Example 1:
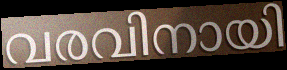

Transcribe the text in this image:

വരവിനായി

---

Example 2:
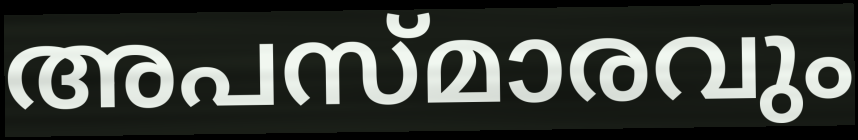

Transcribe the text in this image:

അപസ്മാരവും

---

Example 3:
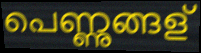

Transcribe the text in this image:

പെണ്ണുങ്ങള്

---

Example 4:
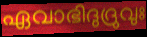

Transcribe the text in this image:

ഏവാഭിദുദ്രുവുഃ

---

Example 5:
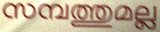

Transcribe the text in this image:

സമ്പത്തുമല്ല